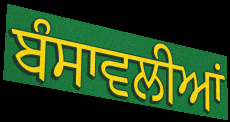
ਬੰਸਾਵਲੀਆਂ